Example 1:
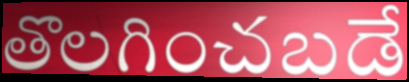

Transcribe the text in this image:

తొలగించబడే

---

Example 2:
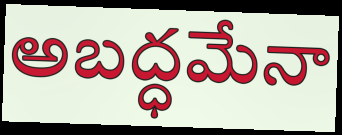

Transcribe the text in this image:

అబద్ధమేనా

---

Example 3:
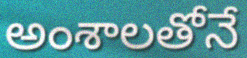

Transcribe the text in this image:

అంశాలతోనే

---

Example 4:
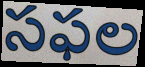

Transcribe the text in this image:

సఫల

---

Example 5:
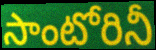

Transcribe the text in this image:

సాంటోరినీ